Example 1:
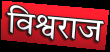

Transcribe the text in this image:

विश्वराज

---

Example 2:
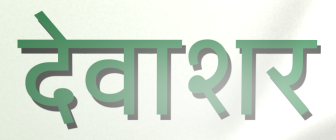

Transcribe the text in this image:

देवाशर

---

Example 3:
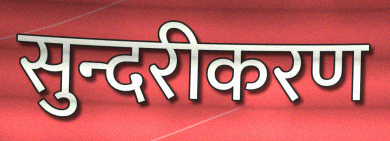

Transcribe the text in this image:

सुन्दरीकरण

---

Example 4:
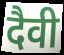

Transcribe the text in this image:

दैवी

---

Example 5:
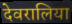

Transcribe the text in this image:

देवरालिया